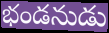
భండనుడు